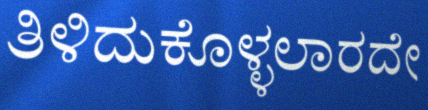
ತಿಳಿದುಕೊಳ್ಳಲಾರದೇ